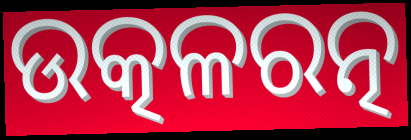
ଉତ୍କଳରତ୍ନ